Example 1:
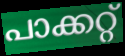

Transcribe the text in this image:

പാക്കറ്റ്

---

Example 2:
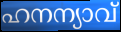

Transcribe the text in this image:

ഹനന്യാവ്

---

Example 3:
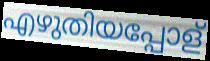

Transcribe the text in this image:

എഴുതിയപ്പോള്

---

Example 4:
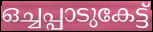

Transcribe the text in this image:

ഒച്ചപ്പാടുകേട്ട്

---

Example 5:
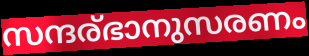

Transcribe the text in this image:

സന്ദര്ഭാനുസരണം